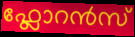
ഫ്ലോറൻസ്